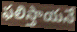
ఫలిస్తాయనే